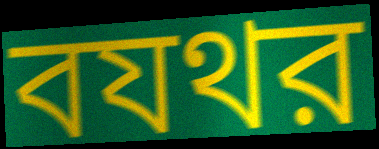
বযথর